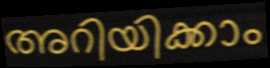
അറിയിക്കാം